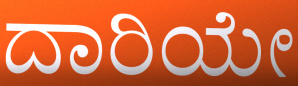
ದಾರಿಯೇ